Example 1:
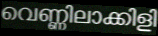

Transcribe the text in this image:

വെണ്ണിലാക്കിളി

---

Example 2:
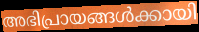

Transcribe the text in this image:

അഭിപ്രായങ്ങൾക്കായി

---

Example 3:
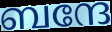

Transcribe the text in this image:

ബന്ദേ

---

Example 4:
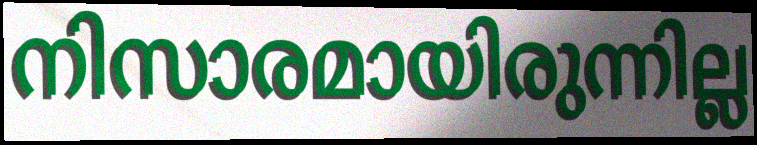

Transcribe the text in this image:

നിസാരമായിരുന്നില്ല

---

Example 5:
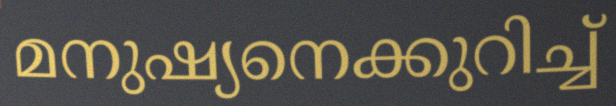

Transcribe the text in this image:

മനുഷ്യനെക്കുറിച്ച്